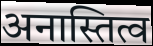
अनास्तित्व